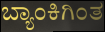
ಬ್ಯಾಂಕಿಗಿಂತ